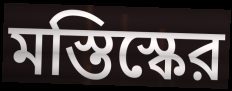
মস্তিস্কের